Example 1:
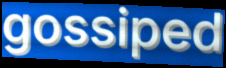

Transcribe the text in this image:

gossiped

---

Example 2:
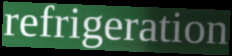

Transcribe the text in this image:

refrigeration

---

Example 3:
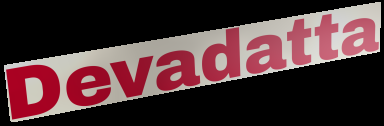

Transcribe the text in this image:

Devadatta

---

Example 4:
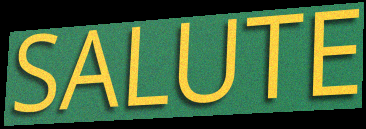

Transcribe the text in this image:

SALUTE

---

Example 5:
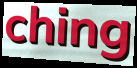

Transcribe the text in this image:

ching